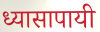
ध्यासापायी